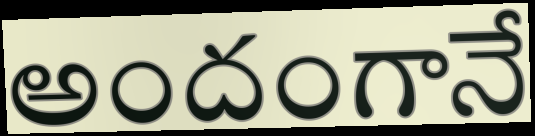
అందంగానే